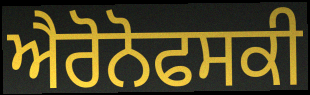
ਐਰੋਨੋਫਸਕੀ